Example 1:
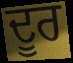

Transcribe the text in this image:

ਦੂਰ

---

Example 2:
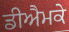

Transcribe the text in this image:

ਡੀਐਮਕੇ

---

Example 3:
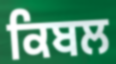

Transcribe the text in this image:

ਕਿਬਲ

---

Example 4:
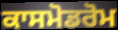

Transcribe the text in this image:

ਕਾਸਮੋਡਰੋਮ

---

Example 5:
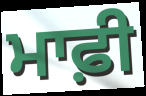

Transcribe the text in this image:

ਮਾਫ਼ੀ